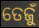
ତେଜୁଁ